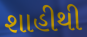
શાહીથી